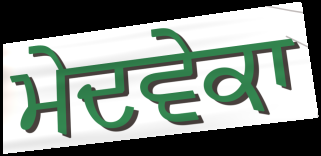
ਮੇਦਵੇਕਾ